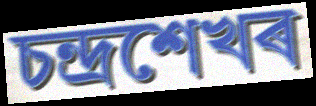
চন্দ্ৰশেখৰ